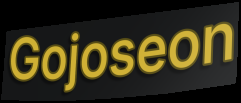
Gojoseon